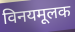
विनयमूलक